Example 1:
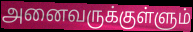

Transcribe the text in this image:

அனைவருக்குள்ளும்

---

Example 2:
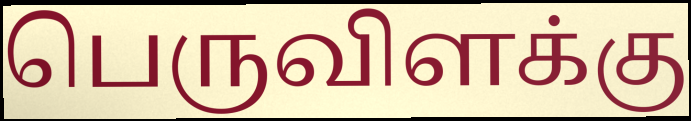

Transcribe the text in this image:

பெருவிளக்கு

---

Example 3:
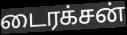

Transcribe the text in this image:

டைரக்சன்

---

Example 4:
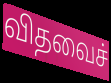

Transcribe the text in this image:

விதவைச்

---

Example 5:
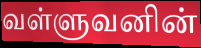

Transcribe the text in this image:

வள்ளுவனின்